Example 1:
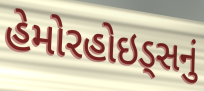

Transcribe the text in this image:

હેમોરહોઇડ્સનું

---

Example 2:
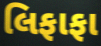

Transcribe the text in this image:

લિફાફા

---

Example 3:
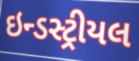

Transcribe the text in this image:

ઇન્ડસ્ટ્રીયલ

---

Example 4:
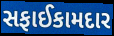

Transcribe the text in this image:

સફાઈકામદાર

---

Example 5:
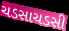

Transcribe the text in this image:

ચડસાચડસી